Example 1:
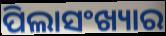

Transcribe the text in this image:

ପିଲାସଂଖ୍ୟାର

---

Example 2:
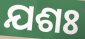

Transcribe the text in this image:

ଯଶଃ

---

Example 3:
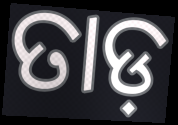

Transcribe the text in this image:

ତାଡ଼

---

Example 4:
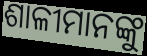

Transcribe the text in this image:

ଶାଳୀମାନଙ୍କୁ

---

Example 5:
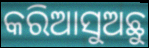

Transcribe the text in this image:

କରିଆସୁଅଛୁ